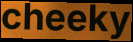
cheeky